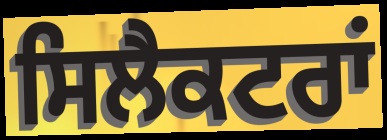
ਸਿਲੈਕਟਰਾਂ